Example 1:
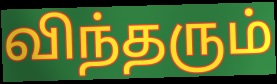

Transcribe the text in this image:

விந்தரும்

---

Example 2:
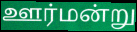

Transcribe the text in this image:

ஊர்மன்று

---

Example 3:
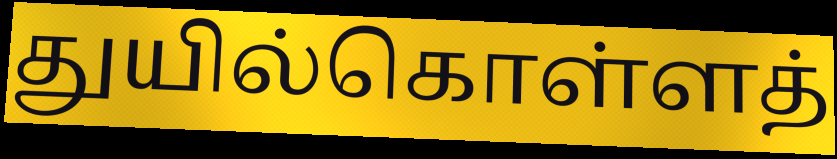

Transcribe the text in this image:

துயில்கொள்ளத்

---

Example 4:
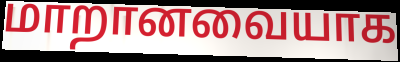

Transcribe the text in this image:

மாறானவையாக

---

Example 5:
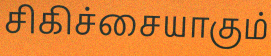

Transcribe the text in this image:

சிகிச்சையாகும்